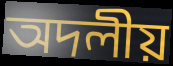
অদলীয়